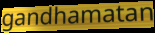
gandhamatan